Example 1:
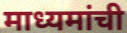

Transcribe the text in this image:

माध्यमांची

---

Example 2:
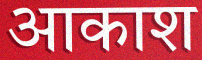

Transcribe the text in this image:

आकाश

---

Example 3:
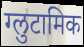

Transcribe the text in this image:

ग्लुटामिक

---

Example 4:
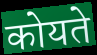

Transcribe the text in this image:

कोयते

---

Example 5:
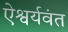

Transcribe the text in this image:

ऐश्वर्यवंत